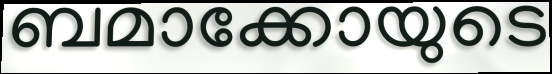
ബമാക്കോയുടെ